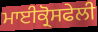
ਮਾਈਕ੍ਰੋਸਫੇਲੀ